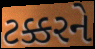
ટક્કરને